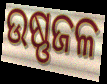
ଉଷ୍ଣଜଳ